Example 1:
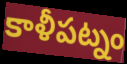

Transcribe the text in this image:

కాళీపట్నం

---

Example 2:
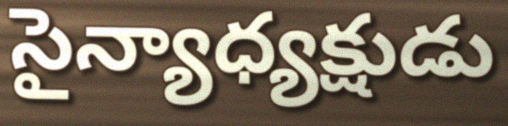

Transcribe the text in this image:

సైన్యాధ్యక్షుడు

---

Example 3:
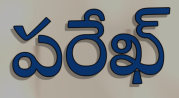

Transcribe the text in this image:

పరేఖ్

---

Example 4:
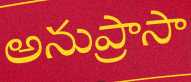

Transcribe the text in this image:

అనుప్రాసా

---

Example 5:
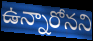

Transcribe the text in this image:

ఉన్నారోనని